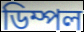
ডিম্পল